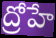
ద్రోహే